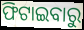
ଫିଟାଇବାରୁ